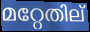
മറ്റേതില്